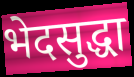
भेदसुद्धा